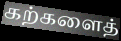
கற்களைத்